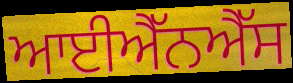
ਆਈਐੱਨਐੱਸ